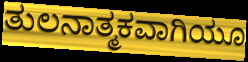
ತುಲನಾತ್ಮಕವಾಗಿಯೂ